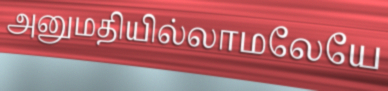
அனுமதியில்லாமலேயே